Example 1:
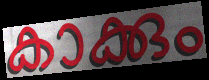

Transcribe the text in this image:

കാക്കും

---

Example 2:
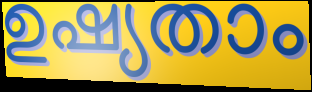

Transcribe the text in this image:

ഉഷ്യതാം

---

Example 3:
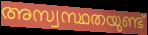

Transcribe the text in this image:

അസ്വസ്ഥതയുണ്ട്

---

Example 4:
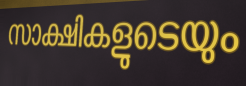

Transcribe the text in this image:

സാക്ഷികളുടെയും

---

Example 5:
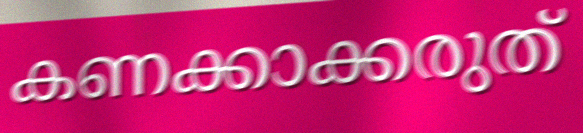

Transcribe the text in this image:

കണക്കാക്കരുത്